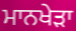
ਮਾਨਖੇੜਾ